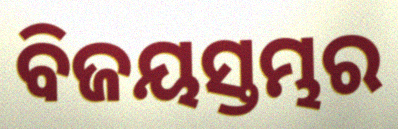
ବିଜୟସ୍ତମ୍ଭର